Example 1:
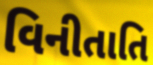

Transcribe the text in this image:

વિનીતાતિ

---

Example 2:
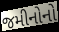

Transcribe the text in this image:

જમીનોનો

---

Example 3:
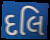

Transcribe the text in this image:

દલિ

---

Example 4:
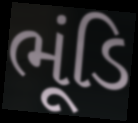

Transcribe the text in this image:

ભૂંડિ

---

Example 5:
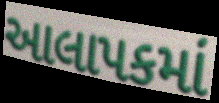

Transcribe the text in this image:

આલાપકમાં